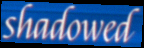
shadowed